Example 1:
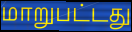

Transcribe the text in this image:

மாறுபட்டது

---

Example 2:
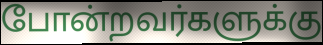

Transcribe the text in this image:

போன்றவர்களுக்கு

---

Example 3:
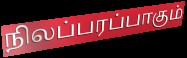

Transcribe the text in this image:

நிலப்பரப்பாகும்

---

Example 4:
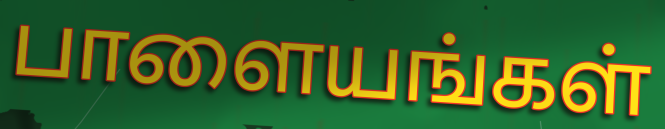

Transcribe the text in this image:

பாளையங்கள்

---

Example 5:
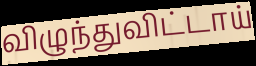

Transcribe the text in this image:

விழுந்துவிட்டாய்